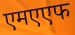
एमएएफ